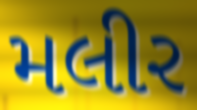
મલીર